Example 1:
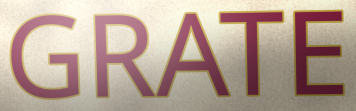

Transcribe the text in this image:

GRATE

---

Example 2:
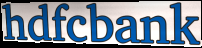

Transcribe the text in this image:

hdfcbank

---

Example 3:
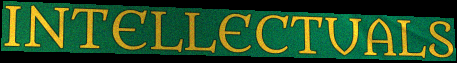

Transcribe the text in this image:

INTELLECTUALS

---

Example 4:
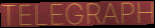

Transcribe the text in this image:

TELEGRAPH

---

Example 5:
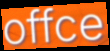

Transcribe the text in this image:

offce